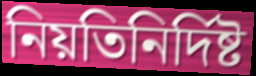
নিয়তিনির্দিষ্ট